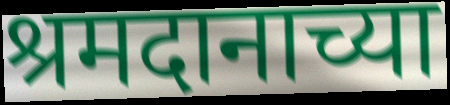
श्रमदानाच्या